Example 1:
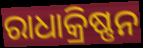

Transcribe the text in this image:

ରାଧାକ୍ରିଷ୍ଣନ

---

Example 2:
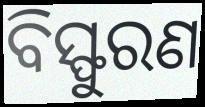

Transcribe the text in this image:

ବିସ୍ଫୁରଣ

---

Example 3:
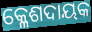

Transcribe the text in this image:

କ୍ଳେଶଦାୟକ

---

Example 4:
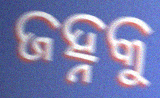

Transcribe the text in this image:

ଜହ୍ନକୁ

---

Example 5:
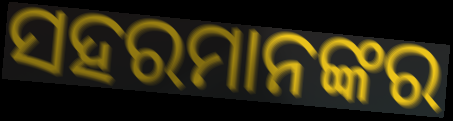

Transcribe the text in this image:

ସହରମାନଙ୍କର